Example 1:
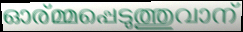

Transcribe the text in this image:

ഓര്മ്മപ്പെടുത്തുവാന്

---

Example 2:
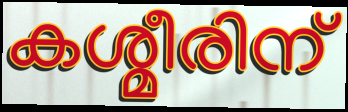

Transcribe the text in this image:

കശ്മീരിന്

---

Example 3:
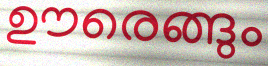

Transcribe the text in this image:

ഊരെങ്ങും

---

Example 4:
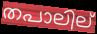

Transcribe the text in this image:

തപാലില്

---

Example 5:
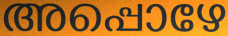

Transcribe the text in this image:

അപ്പൊഴേ